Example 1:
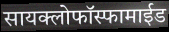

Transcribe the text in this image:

सायक्लोफॉस्फामाईड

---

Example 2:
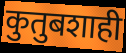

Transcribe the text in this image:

कुतुबशाही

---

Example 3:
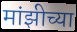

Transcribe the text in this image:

मांझीच्या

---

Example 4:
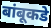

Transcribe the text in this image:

बांबूकडे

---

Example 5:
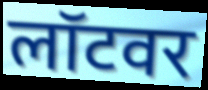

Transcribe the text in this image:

लॉटवर